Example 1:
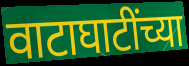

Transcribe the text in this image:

वाटाघाटींच्या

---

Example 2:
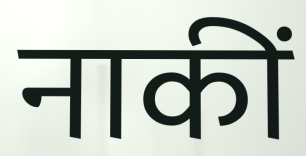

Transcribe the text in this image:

नाकीं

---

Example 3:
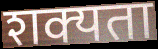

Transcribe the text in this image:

शक्यता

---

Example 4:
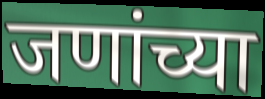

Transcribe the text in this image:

जणांच्या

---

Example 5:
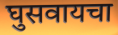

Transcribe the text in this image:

घुसवायचा